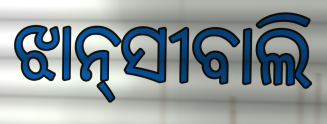
ଝାନ୍‌ସୀବାଲି